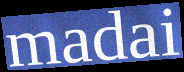
madai